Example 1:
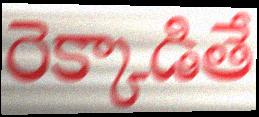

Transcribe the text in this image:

రెక్కాడితే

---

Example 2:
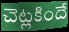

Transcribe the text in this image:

చెట్లకిందే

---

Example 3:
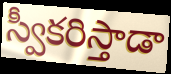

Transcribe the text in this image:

స్వీకరిస్తాడా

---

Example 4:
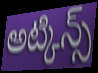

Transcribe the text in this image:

అట్కిన్స్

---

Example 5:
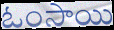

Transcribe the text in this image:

ఓంసాయి